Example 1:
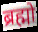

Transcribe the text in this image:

ब्रह्मो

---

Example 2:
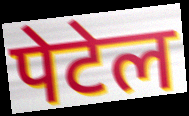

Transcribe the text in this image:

पेटेल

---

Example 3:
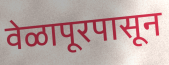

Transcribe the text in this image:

वेळापूरपासून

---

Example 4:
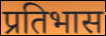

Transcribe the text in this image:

प्रतिभास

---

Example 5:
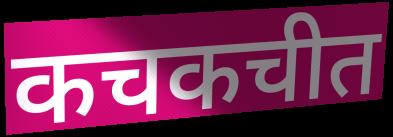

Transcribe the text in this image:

कचकचीत